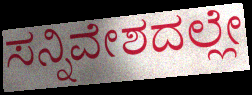
ಸನ್ನಿವೇಶದಲ್ಲೇ